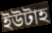
ইউটাহ